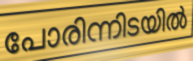
പോരിന്നിടയിൽ